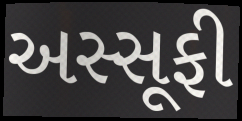
અસ્સૂફી